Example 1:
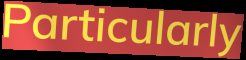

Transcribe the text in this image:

Particularly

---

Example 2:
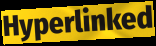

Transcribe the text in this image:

Hyperlinked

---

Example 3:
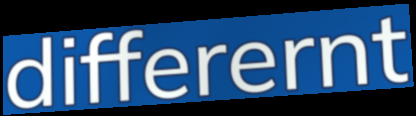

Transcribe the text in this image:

differernt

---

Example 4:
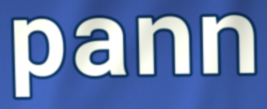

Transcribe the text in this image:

pann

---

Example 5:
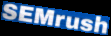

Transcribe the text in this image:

SEMrush